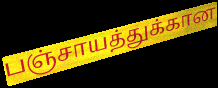
பஞ்சாயத்துக்கான